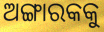
ଅଙ୍ଗାରକକୁ